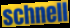
schnell